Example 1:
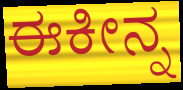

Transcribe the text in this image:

ಈಕೀನ್ನ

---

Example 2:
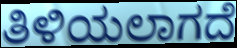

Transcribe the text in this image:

ತಿಳಿಯಲಾಗದೆ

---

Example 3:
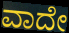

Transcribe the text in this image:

ವಾದೇ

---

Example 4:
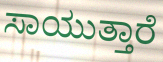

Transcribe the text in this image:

ಸಾಯುತ್ತಾರೆ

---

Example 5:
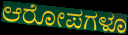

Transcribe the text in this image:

ಆರೋಪಗಳೂ